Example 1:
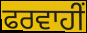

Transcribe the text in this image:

ਫਰਵਾਹੀਂ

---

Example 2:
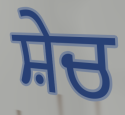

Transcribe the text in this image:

ਸ਼ੇਚ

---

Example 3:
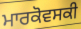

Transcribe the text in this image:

ਮਾਰਕੋਵਸਕੀ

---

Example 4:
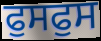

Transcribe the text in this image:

ਫੁਸਫੁਸ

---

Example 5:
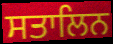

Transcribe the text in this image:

ਸਤਾਲਿਨ